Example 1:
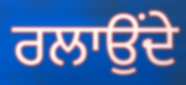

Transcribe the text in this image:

ਰਲਾਉਂਦੇ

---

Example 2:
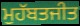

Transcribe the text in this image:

ਮੁਹੱਬਤਜੀਤ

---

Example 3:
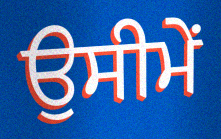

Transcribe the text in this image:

ਉਸੀਮੇਂ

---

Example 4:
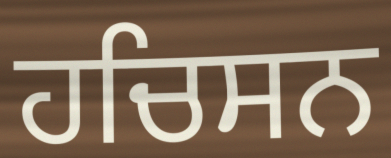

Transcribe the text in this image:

ਹਚਿਸਨ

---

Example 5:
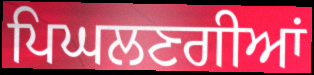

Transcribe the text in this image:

ਪਿਘਲਣਗੀਆਂ